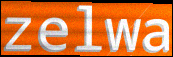
zelwa